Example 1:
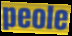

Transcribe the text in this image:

peole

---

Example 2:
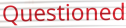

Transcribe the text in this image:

Questioned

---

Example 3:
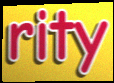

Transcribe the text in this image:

rity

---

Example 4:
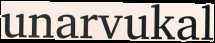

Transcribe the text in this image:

unarvukal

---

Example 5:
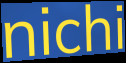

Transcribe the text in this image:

nichi